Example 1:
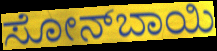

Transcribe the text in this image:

ಸೋನ್‍ಬಾಯಿ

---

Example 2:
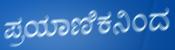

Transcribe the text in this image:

ಪ್ರಯಾಣಿಕನಿಂದ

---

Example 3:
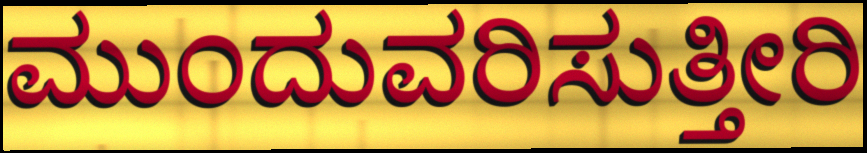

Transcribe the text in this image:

ಮುಂದುವರಿಸುತ್ತೀರಿ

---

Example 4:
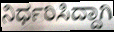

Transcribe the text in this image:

ನಿರ್ಧರಿಸಿದ್ದಾಗಿ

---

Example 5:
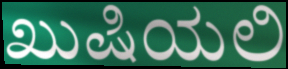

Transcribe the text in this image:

ಖುಷಿಯಲಿ